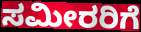
ಸಮೀರರಿಗೆ